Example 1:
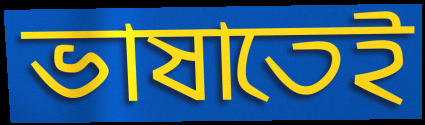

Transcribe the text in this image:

ভাষাতেই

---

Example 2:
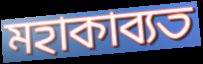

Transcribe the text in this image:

মহাকাব্যত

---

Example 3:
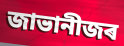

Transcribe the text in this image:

জাভানীজৰ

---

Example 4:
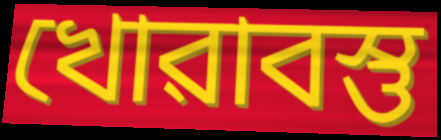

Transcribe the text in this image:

খোৱাবস্তু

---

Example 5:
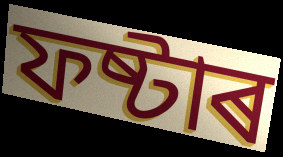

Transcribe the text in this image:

ফষ্টাৰ